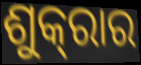
ଶୁକ୍‌ରାର